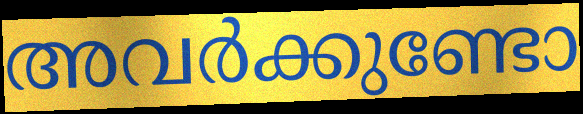
അവർക്കുണ്ടോ